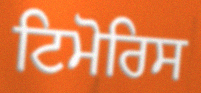
ਟਿਮੋਰਿਸ